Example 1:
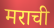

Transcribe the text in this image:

मराची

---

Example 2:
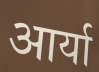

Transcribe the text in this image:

आर्या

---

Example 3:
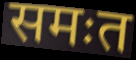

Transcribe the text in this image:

समःत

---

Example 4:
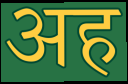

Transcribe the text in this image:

अह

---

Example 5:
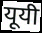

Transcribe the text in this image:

यूयी